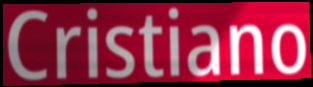
Cristiano